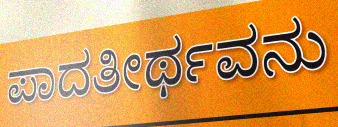
ಪಾದತೀರ್ಥವನು